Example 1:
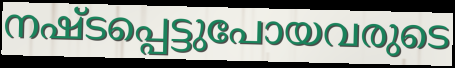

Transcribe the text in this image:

നഷ്ടപ്പെട്ടുപോയവരുടെ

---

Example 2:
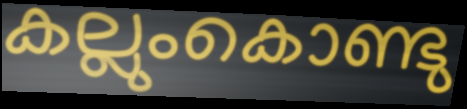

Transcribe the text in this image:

കല്ലുംകൊണ്ടു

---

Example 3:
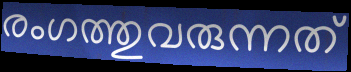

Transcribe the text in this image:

രംഗത്തുവരുന്നത്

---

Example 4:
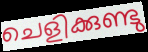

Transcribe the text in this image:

ചെളിക്കുണ്ടു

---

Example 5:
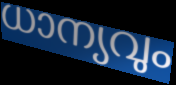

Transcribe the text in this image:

ധാന്യവും